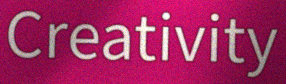
Creativity